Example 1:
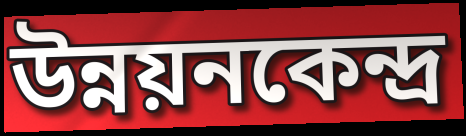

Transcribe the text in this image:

উন্নয়নকেন্দ্র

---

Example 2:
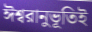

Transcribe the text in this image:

ঈশ্বরানুভূতিই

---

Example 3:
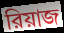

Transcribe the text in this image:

রিয়াজ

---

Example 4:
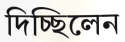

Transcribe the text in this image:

দিচ্ছিলেন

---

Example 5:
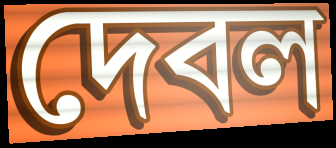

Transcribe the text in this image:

দেবল